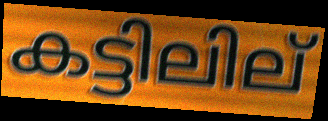
കട്ടിലില്